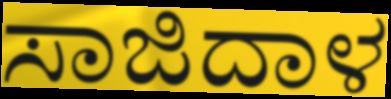
ಸಾಜಿದಾಳ